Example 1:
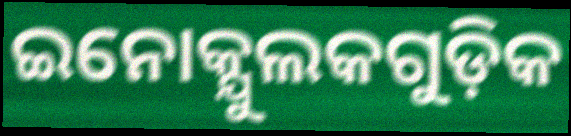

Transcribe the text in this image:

ଇନୋକ୍ଯୁଲକଗୁଡ଼ିକ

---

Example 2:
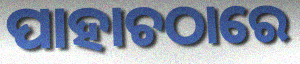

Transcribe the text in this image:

ପାହାଚଠାରେ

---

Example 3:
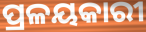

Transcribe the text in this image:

ପ୍ରଳୟକାରୀ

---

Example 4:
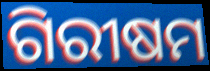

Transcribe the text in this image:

ଗିରୀଷମ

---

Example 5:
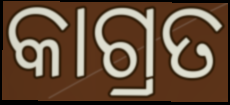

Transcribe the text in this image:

କାଗ୍ରତ